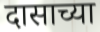
दासाच्या